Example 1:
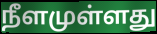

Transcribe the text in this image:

நீளமுள்ளது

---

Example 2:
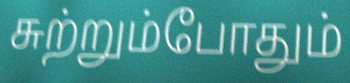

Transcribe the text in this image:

சுற்றும்போதும்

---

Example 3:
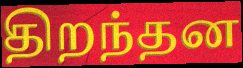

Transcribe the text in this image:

திறந்தன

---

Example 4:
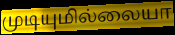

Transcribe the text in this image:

முடியுமில்லையா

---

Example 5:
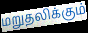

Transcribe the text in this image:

மறுதலிக்கும்